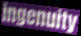
ingenuity